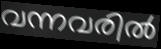
വന്നവരിൽ